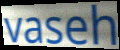
vaseh